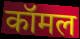
कॉमल